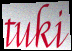
tuki